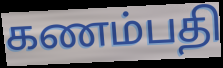
கணம்பதி